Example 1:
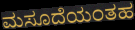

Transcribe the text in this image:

ಮಸೂದೆಯಂತಹ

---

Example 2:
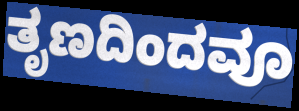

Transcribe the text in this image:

ತೃಣದಿಂದವೂ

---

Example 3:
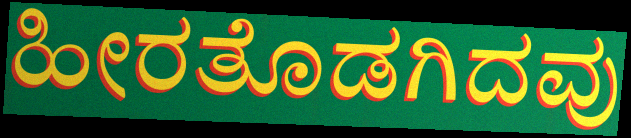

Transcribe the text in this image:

ಹೀರತೊಡಗಿದವು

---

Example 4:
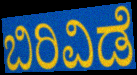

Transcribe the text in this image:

ಬಿರಿವಿಡೆ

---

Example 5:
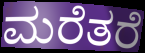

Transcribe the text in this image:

ಮರೆತರೆ